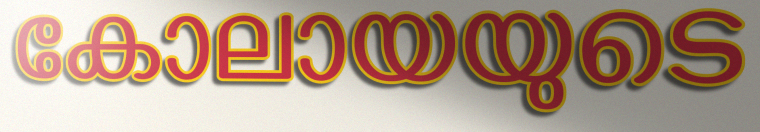
കോലായയുടെ